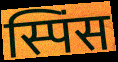
स्पिंस